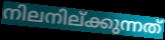
നിലനില്ക്കുന്നത്